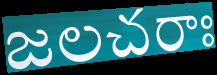
జలచరాః